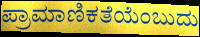
ಪ್ರಾಮಾಣಿಕತೆಯೆಂಬುದು